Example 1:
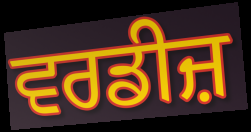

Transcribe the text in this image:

ਵਰਡੀਜ਼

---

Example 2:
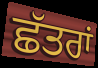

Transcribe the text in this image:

ਛੱਤਰਾਂ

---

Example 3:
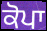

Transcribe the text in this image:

ਕੋਪਾ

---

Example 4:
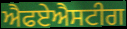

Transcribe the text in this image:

ਐਫਏਐਸਟੀਗ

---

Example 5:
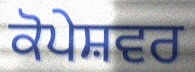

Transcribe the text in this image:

ਕੋਪੇਸ਼ਵਰ